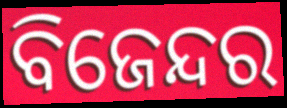
ବିଜେନ୍ଦର